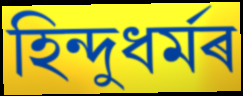
হিন্দুধৰ্মৰ